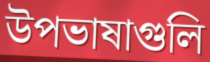
উপভাষাগুলি